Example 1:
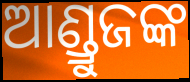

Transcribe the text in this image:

ଆଣ୍ଡ୍ରୁଜଙ୍କ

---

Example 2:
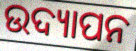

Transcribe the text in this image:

ଉଦ୍ୟାପନ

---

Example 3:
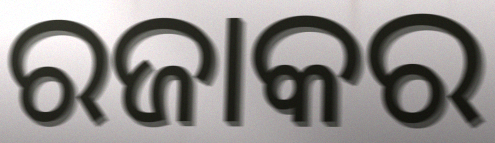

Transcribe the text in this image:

ରଜାକର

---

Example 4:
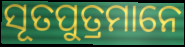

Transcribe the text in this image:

ସୂତପୁତ୍ରମାନେ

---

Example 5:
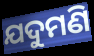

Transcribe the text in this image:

ଯଦୁମଣି